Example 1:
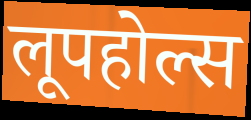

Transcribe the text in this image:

लूपहोल्स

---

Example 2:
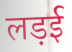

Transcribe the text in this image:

लड़ई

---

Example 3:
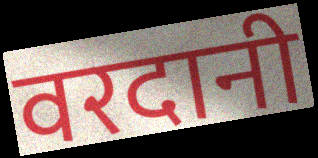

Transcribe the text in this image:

वरदानी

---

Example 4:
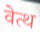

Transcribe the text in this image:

वेत्थ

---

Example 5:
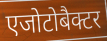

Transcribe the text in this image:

एजोटोबैक्टर